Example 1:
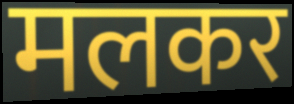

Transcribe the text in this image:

मलकर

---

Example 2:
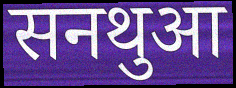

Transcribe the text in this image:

सनथुआ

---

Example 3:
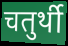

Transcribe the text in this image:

चतुर्थी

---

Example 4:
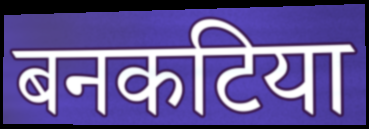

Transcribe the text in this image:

बनकटिया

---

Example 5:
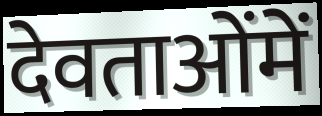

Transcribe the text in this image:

देवताओंमें